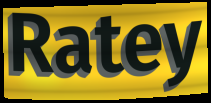
Ratey